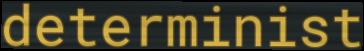
determinist